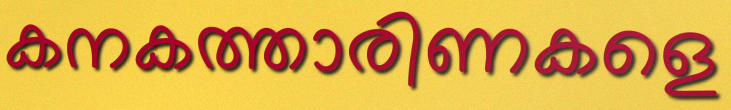
കനകത്താരിണകളെ